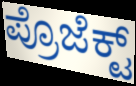
ಪ್ರೊಜೆಕ್ಟ್